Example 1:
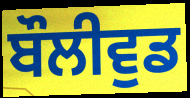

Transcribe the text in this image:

ਬੌਲੀਵੁਡ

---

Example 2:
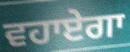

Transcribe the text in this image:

ਵਹਾਏਗਾ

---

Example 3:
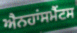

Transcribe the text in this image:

ਐਨਹਾਂਸਮੈਂਟਸ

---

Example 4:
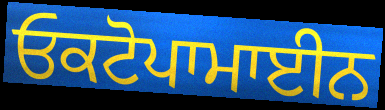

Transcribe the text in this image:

ਓਕਟੋਪਾਮਾਈਨ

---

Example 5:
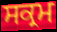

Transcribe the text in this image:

ਸਕ੍ਰਮ